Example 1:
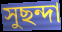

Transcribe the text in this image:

সুছন্দা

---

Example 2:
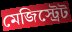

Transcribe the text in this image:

মেজিস্ট্রেট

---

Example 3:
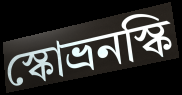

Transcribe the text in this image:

স্কোভ্রনস্কি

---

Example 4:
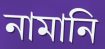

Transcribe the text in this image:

নামানি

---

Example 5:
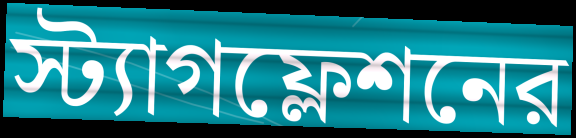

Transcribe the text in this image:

স্ট্যাগফ্লেশনের